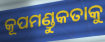
କୂପମଣ୍ଡୁକତାକୁ